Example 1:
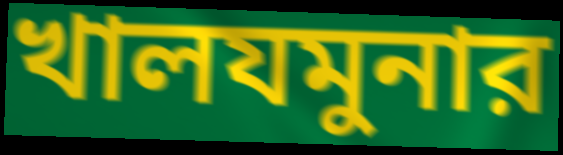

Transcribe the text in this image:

খালযমুনার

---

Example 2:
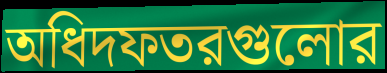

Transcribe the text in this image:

অধিদফতরগুলোর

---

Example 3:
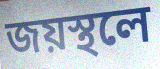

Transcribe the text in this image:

জয়স্থলে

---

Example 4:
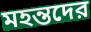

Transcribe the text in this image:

মহন্তদের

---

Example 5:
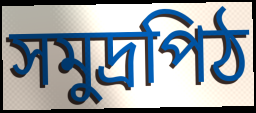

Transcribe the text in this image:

সমুদ্রপিঠ